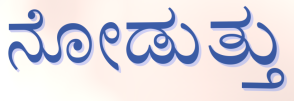
ನೋಡುತ್ತು